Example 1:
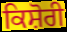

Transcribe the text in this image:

ਕਿਸ਼ੋਰੀ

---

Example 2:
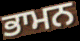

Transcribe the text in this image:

ਭਾਮਨ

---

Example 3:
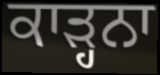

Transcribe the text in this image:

ਕਾੜ੍ਹਨਾ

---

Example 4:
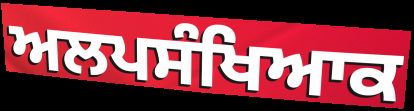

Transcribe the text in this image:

ਅਲਪਸੰਖਿਆਕ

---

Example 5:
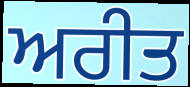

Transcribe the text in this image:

ਅਰੀਤ